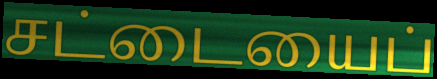
சட்டையைப்